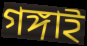
গঙ্গাই